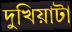
দুখিয়াটা